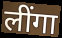
लींगा